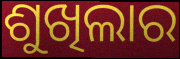
ଶୁଖିଲାର